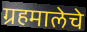
ग्रहमालेचे